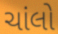
ચાંલો